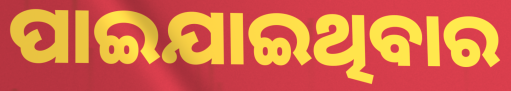
ପାଇଯାଇଥିବାର